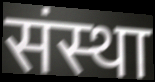
संस्था